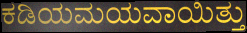
ಕಡಿಯಮಯವಾಯಿತ್ತು